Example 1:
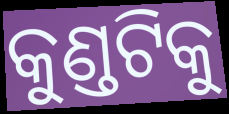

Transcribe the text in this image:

କୁଣ୍ଡଟିକୁ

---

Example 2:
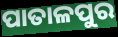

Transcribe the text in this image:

ପାତାଳପୁର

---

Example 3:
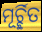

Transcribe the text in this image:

ମୂର୍ଚ୍ଛିତ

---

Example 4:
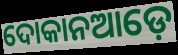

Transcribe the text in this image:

ଦୋକାନଆଡ଼େ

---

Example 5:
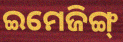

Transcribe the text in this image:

ଇମେଜିଙ୍ଗ୍